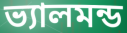
ভ্যালমন্ড